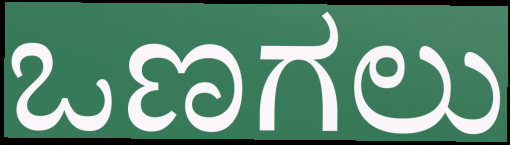
ಒಣಗಲು